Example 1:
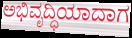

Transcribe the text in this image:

ಅಭಿವೃದ್ಧಿಯಾದಾಗ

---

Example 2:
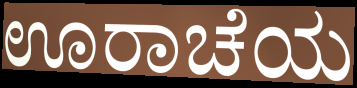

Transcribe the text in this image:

ಊರಾಚೆಯ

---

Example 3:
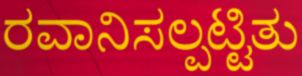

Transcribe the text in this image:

ರವಾನಿಸಲ್ಪಟ್ಟಿತು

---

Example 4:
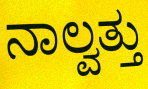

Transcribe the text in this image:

ನಾಲ್ವತ್ತು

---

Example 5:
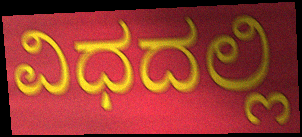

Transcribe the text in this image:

ವಿಧದಲ್ಲಿ